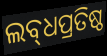
ଲବ୍‌ଧପ୍ରତିଷ୍ଠ